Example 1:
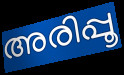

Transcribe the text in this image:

അരിപ്പൂ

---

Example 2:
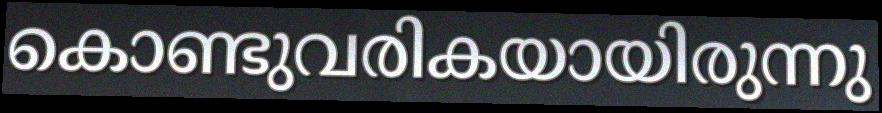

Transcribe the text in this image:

കൊണ്ടുവരികയായിരുന്നു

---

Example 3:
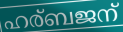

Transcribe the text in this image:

ഹര്ബജന്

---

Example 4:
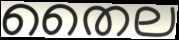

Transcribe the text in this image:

തൈല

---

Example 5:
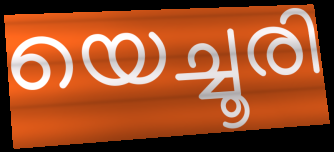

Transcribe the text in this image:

യെച്ചൂരി